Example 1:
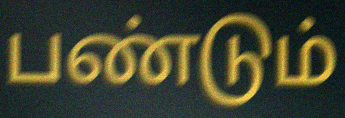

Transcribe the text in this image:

பண்டும்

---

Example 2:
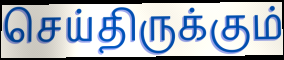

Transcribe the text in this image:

செய்திருக்கும்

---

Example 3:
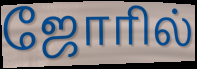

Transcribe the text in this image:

ஜோரில்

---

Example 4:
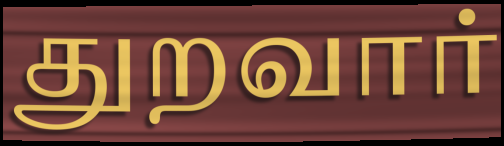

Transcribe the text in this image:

துறவார்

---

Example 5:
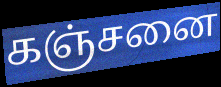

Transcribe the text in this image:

கஞ்சனை